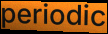
periodic